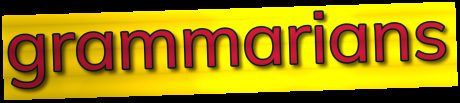
grammarians